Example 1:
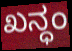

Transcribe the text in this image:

ಖನ್ಧಂ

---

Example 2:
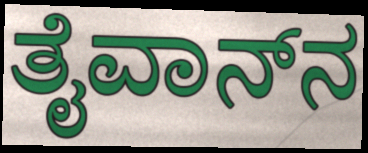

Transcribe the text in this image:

ತೈವಾನ್‌ನ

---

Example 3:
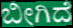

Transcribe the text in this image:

ಬೀಗಿದೆ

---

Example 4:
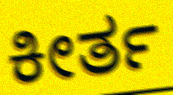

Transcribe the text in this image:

ಕೀರ್ತ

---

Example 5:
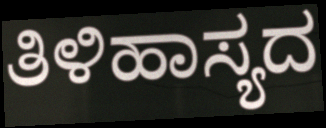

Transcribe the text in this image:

ತಿಳಿಹಾಸ್ಯದ